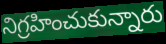
నిగ్రహించుకున్నారు